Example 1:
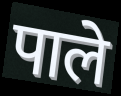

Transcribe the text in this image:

पाले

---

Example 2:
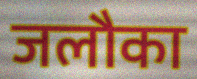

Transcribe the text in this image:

जलौका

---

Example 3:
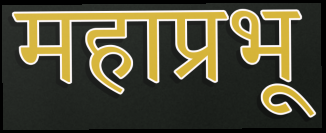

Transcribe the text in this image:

महाप्रभू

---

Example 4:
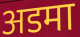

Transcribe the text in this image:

अडमा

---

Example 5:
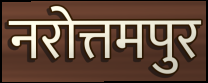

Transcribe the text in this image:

नरोत्तमपुर